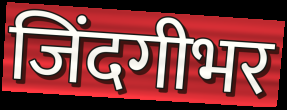
जिंदगीभर